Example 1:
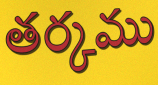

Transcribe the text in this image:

తర్కము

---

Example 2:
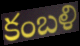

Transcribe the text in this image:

కంబళి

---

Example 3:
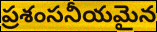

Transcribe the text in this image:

ప్రశంసనీయమైన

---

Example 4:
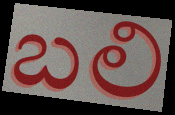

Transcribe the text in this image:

బలి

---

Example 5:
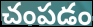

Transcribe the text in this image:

చంపడం